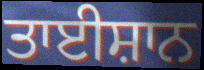
ਤਾਈਸ਼ਾਨ